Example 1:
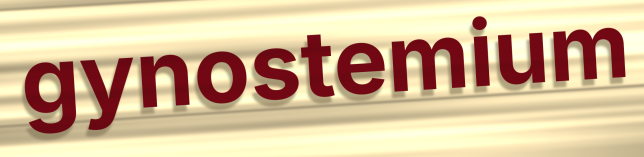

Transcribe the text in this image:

gynostemium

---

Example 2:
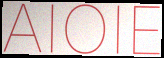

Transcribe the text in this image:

AIOIE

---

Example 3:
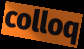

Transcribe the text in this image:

colloq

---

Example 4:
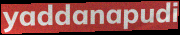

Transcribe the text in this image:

yaddanapudi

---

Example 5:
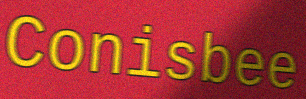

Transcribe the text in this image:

Conisbee